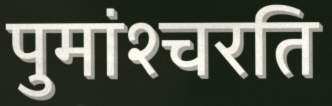
पुमांश्चरति